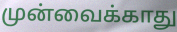
முன்வைக்காது